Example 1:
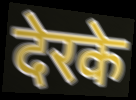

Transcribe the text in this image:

देरके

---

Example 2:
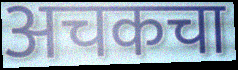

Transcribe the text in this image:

अचकचा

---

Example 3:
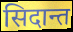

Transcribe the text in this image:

सिदान्त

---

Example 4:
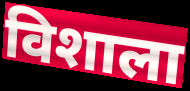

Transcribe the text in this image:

विशाला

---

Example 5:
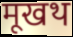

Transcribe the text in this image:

मूखथ